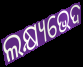
ଲକ୍ଷ୍ୟଭେଦ